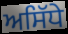
ਅਸਿੱਧੇ